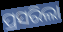
ପ୍ରସରିଲା